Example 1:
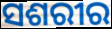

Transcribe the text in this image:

ସଶରୀର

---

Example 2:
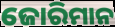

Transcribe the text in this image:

ଜୋରିମାନ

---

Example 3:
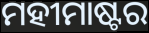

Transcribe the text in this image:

ମହୀମାଷ୍ଟର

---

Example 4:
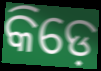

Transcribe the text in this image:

କିଡ଼େ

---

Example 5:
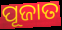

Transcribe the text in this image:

ପୂଜାତ